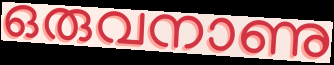
ഒരുവനാണു